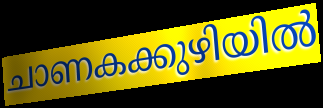
ചാണകക്കുഴിയിൽ